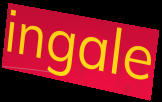
ingale